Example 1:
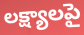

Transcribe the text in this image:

లక్ష్యాలపై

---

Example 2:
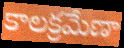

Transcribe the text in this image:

కాలక్రమేణా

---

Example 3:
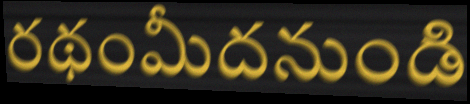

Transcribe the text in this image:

రథంమీదనుండి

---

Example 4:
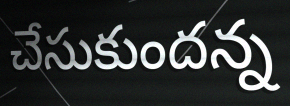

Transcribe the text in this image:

చేసుకుందన్న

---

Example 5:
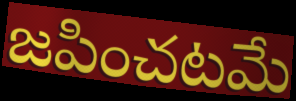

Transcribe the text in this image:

జపించటమే